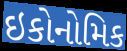
ઇકોનોમિક